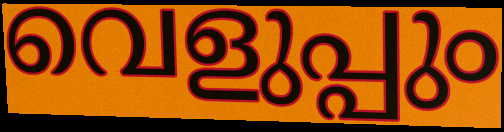
വെളുപ്പും